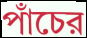
পাঁচের